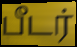
பீடர்